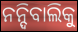
ନନ୍ଦିବାଲିକୁ